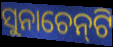
ସୁନାଚେନ୍‍ଟି